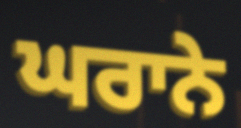
ਘਰਾਨੇ